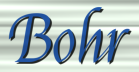
Bohr